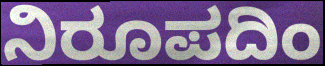
ನಿರೂಪದಿಂ